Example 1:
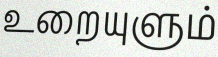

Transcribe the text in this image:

உறையுளும்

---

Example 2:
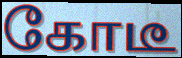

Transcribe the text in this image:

கோடீ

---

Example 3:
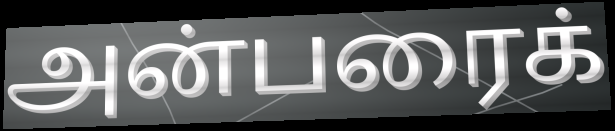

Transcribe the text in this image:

அன்பரைக்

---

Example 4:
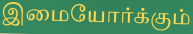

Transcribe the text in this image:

இமையோர்க்கும்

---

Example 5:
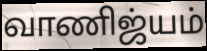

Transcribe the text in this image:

வாணிஜ்யம்